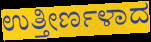
ಉತ್ತೀರ್ಣಳಾದ